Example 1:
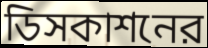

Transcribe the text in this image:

ডিসকাশনের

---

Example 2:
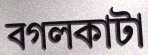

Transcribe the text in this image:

বগলকাটা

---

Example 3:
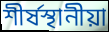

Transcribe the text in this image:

শীর্ষস্থানীয়া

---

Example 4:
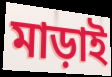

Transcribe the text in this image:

মাড়াই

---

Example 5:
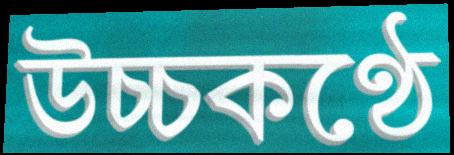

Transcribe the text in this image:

উচ্চকণ্ঠে